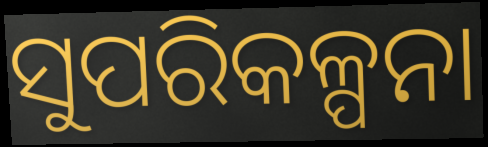
ସୁପରିକଳ୍ପନା